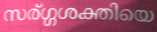
സര്ഗ്ഗശക്തിയെ